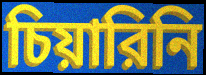
চিয়ারিনি